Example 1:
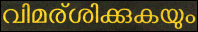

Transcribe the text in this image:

വിമര്ശിക്കുകയും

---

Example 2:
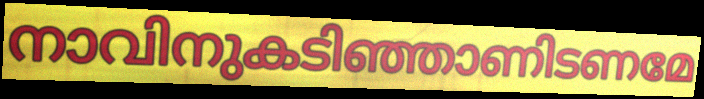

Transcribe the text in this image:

നാവിനുകടിഞ്ഞാണിടണമേ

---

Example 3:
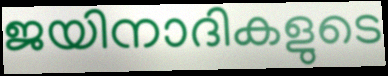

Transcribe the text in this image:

ജയിനാദികളുടെ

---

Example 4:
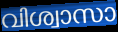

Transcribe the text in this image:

വിശ്വാസാ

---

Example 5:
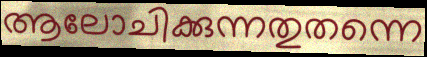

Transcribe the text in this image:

ആലോചിക്കുന്നതുതന്നെ